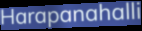
Harapanahalli